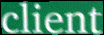
client